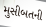
મુસીબતની